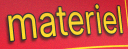
materiel